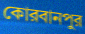
কোরবানপুর